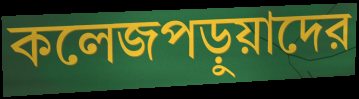
কলেজপড়ুয়াদের